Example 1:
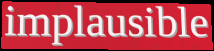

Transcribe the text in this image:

implausible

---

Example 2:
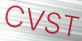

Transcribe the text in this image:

CVST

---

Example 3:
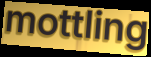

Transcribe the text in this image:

mottling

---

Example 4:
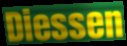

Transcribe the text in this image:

Diessen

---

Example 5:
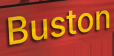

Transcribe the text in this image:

Buston